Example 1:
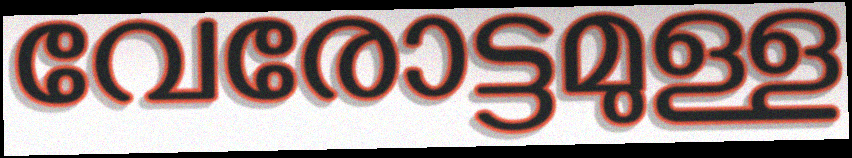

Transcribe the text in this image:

വേരോട്ടമുള്ള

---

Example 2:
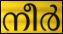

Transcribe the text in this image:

നീർ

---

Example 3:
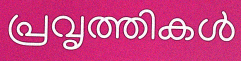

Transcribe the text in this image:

പ്രവൃത്തികൾ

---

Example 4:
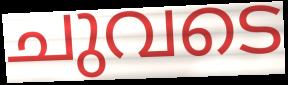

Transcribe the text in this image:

ചുവടെ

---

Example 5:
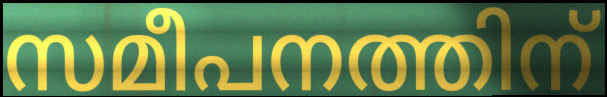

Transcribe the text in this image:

സമീപനത്തിന്